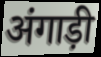
अंगाड़ी